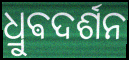
ଧ୍ରୁଵଦର୍ଶନ